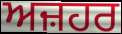
ਅਜ਼ਹਰ